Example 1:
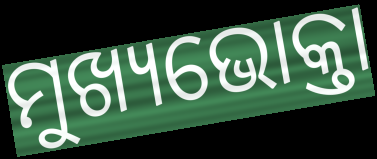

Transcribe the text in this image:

ମୁଖ୍ୟଭୋକ୍ତା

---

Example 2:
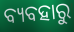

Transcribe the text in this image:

ବ୍ୟବହାରୁ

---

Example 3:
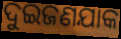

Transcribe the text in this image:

ଦୁଇଜଣଯାକ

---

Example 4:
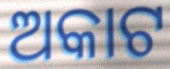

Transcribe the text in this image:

ଅକାଟ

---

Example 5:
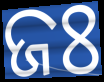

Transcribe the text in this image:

ଜଃ